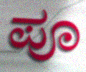
ಪೂ